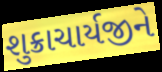
શુક્રાચાર્યજીને